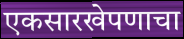
एकसारखेपणाचा